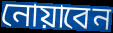
নোয়াবেন